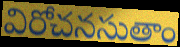
విరోచనసుతాం